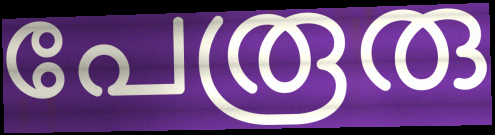
പേരൂരു